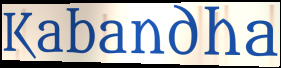
Kabandha